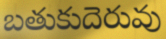
బతుకుదెరువు